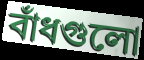
বাঁধগুলো